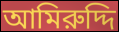
আমিরুদ্দি